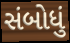
સંબોધું